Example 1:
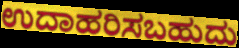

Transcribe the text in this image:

ಉದಾಹರಿಸಬಹುದು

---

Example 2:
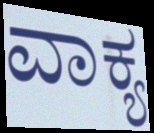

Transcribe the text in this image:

ವಾಕ್ಯ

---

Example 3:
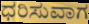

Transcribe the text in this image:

ಧರಿಸುವಾಗ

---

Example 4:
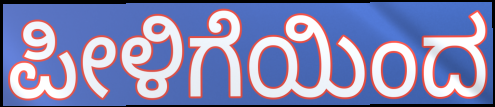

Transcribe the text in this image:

ಪೀಳಿಗೆಯಿಂದ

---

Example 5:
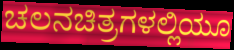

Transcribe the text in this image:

ಚಲನಚಿತ್ರಗಳಲ್ಲಿಯೂ